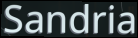
Sandria